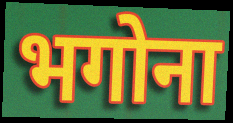
भगोना